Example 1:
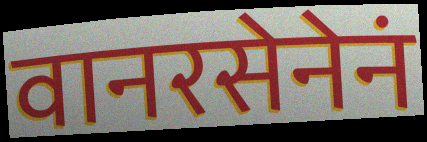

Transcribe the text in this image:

वानरसेनेनं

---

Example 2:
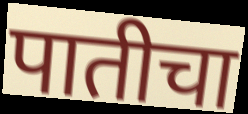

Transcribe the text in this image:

पातीचा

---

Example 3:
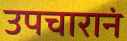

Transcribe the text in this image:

उपचारानं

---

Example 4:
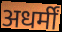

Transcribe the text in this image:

अधर्मीं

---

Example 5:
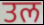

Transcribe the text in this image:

उल